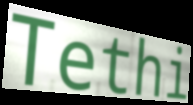
Tethi